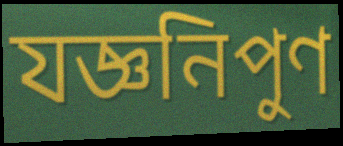
যজ্ঞনিপুণ